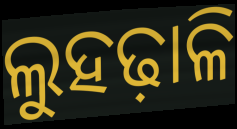
ଲୁହଢ଼ାଳି